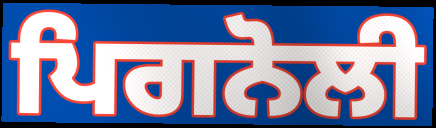
ਪਿਗਨੋਲੀ